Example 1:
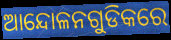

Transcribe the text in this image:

ଆନ୍ଦୋଳନଗୁଡିକରେ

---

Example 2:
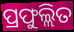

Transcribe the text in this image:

ପ୍ରଫୁଲ୍ଲିତ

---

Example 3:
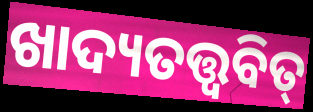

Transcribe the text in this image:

ଖାଦ୍ୟତତ୍ତ୍ୱବିତ୍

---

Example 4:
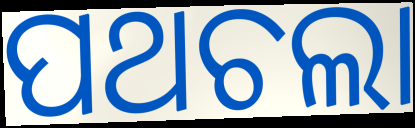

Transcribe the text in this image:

ପଥଚଲା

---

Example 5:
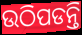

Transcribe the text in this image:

ଉଠିପଡନ୍ତି